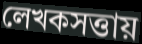
লেখকসত্তায়